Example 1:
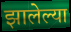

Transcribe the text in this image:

झालेल्या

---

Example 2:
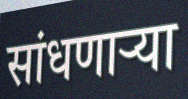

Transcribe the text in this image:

सांधणार्‍या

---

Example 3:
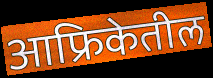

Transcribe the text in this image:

आफ्रिकेतील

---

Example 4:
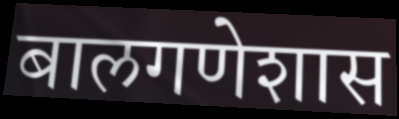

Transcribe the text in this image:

बालगणेशास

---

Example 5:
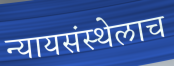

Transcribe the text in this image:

न्यायसंस्थेलाच